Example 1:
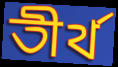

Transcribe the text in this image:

তীর্থ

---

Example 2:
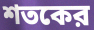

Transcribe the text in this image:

শতকের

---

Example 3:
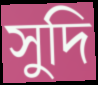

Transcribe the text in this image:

সুদি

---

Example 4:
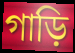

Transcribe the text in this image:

গাড়ি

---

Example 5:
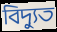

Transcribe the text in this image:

বিদ্যুত